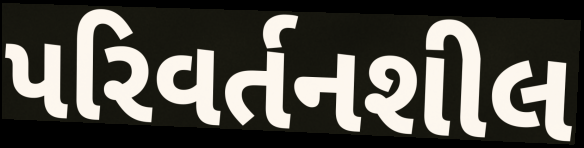
પરિવર્તનશીલ